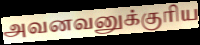
அவனவனுக்குரிய